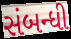
સંબન્ધી